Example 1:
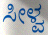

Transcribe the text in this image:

ಸೀಳ್ವ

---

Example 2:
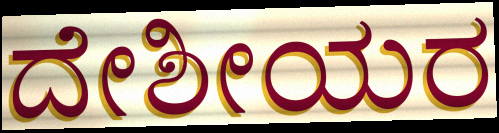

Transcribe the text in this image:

ದೇಶೀಯರ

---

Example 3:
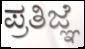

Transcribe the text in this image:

ಪ್ರತಿಜ್ಞೆ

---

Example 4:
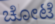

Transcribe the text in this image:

ಚೋಟೆ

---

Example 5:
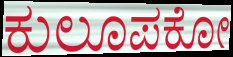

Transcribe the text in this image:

ಕುಲೂಪಕೋ